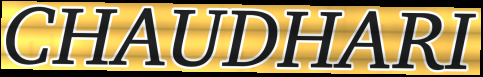
CHAUDHARI